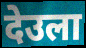
देउला